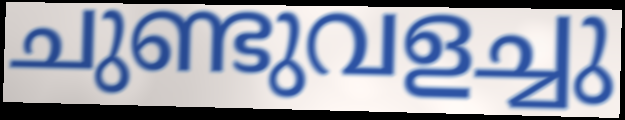
ചുണ്ടുവളച്ചു